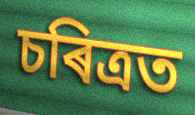
চৰিত্ৰত